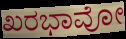
ಖರಭಾವೋ